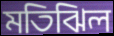
মতিঝিল